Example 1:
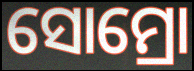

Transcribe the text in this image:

ସୋମ୍ରୋ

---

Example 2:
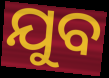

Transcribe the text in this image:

ଯୁବ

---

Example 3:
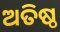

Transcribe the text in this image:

ଅତିଷ୍ଠ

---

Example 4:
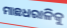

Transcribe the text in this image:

ମାଛଧରାଳିକୁ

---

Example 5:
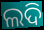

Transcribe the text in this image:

ଲଦି